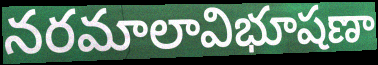
నరమాలావిభూషణా